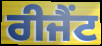
ਰੀਜੈਂਟ